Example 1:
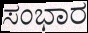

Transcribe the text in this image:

ಸಂಭಾರ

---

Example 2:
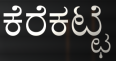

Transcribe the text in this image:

ಕೆರೆಕಟ್ಟೆ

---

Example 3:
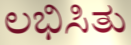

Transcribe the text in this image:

ಲಭಿಸಿತು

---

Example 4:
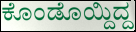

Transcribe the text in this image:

ಕೊಂಡೊಯ್ದಿದ್ದ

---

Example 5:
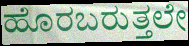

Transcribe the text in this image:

ಹೊರಬರುತ್ತಲೇ